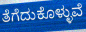
ತೆಗೆದುಕೊಳ್ಳುವೆ